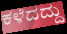
ಕಳೆದದ್ದು